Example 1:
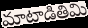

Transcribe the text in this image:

మాటాడితిమి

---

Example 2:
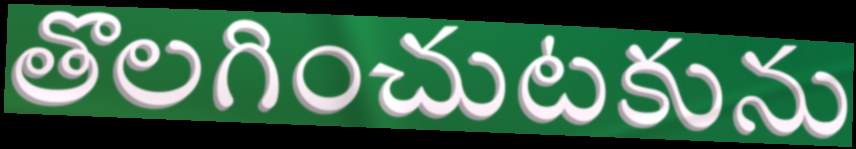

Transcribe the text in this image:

తొలగించుటకును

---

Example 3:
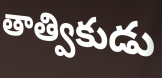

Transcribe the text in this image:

తాత్వికుడు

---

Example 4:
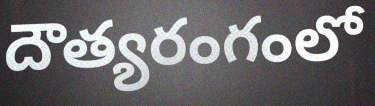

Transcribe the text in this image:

దౌత్యరంగంలో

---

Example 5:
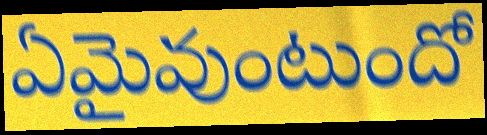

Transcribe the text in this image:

ఏమైవుంటుందో